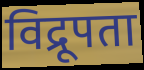
विद्रूपता